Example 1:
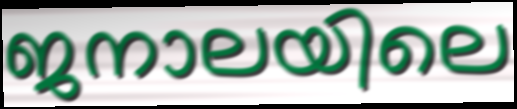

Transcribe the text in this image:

ജനാലയിലെ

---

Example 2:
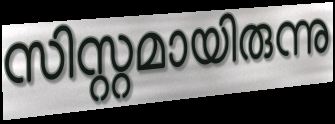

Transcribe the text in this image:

സിസ്റ്റമായിരുന്നു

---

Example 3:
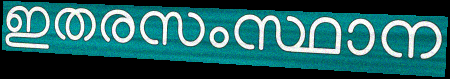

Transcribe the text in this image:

ഇതരസംസ്ഥാന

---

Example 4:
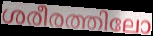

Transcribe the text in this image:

ശരീരത്തിലോ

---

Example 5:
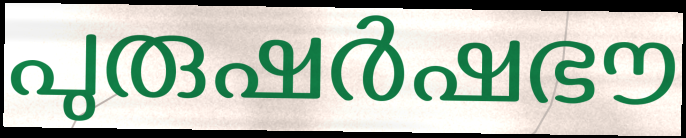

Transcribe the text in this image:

പുരുഷർഷഭൗ